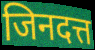
जिनदत्त